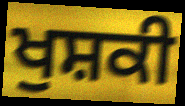
ਖੁਸ਼ਕੀ